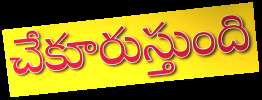
చేకూరుస్తుంది